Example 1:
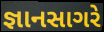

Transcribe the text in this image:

જ્ઞાનસાગરે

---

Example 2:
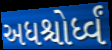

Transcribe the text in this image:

અધશ્ચોર્ધ્વં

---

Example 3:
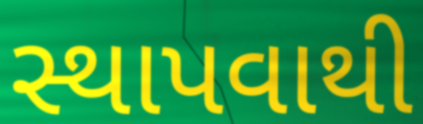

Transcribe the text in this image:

સ્થાપવાથી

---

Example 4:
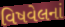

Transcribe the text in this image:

વિષવેલનાં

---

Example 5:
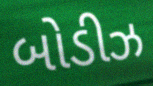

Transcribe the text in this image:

બોડીઝ